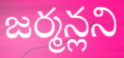
జర్మన్లని